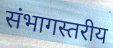
संभागस्तरीय